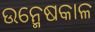
ଉନ୍ମେଷକାଳ